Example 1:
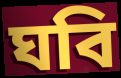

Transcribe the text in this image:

ঘবি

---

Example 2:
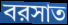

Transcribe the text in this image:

বরসাত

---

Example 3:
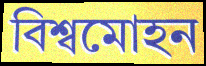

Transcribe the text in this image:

বিশ্বমোহন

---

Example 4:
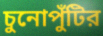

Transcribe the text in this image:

চুনোপুঁটির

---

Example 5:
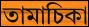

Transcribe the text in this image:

তামাচিকা